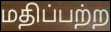
மதிப்பற்ற